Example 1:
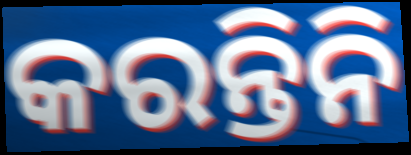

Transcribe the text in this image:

କରନ୍ତିନି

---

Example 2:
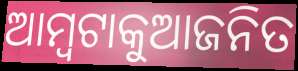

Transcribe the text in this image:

ଆମ୍ବଟାକୁଆଜନିତ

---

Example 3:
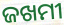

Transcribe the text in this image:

ଜଖମୀ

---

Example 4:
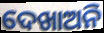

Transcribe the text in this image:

ଦେଖାଅନି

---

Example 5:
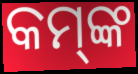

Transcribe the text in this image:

କମ୍‌ଙ୍କ